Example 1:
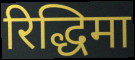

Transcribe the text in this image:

रिद्धिमा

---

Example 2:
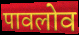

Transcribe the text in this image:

पावलोव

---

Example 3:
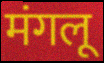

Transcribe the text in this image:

मंगलू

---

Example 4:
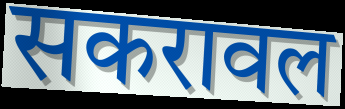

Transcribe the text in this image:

सकरावल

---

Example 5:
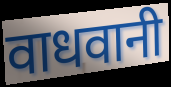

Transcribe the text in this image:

वाधवानी